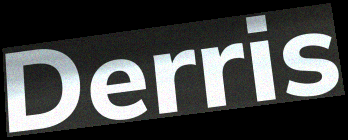
Derris